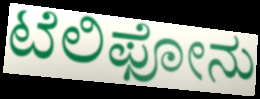
ಟೆಲಿಫೋನು